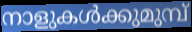
നാളുകൾക്കുമുമ്പ്